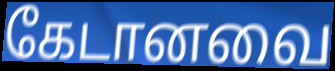
கேடானவை